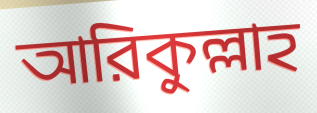
আরিকুল্লাহ